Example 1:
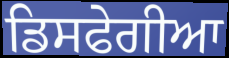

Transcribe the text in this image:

ਡਿਸਫੇਗੀਆ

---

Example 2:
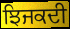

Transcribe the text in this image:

ਝਿਜਕਦੀ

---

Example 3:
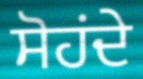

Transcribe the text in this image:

ਸੋਹਂਦੇ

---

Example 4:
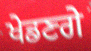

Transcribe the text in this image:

ਖੇਡਣਗੇ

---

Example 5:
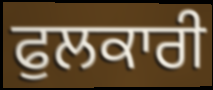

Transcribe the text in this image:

ਫੁਲਕਾਰੀ